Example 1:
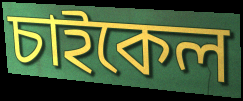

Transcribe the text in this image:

চাইকেল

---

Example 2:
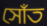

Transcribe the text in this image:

সোঁত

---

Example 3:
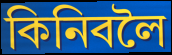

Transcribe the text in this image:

কিনিবলৈ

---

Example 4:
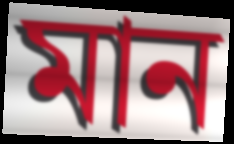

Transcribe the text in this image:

মান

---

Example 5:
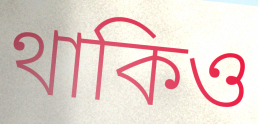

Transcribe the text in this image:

থাকিও